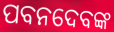
ପବନଦେବଙ୍କ